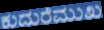
ಕುದುರೆಮುಖ